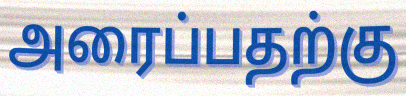
அரைப்பதற்கு